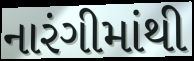
નારંગીમાંથી